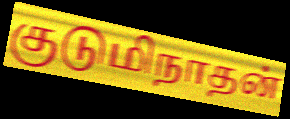
குடுமிநாதன்